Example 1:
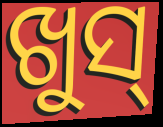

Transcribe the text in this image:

ଖୁସ୍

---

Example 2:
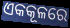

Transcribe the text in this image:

ଏକକୂଳରେ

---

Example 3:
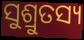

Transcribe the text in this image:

ସୁଶ୍ରୁତସ୍ୟ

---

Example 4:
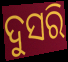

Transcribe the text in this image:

ଦୁସରି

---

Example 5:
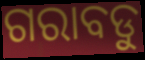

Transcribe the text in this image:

ଗରାବଡୁ